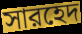
সারহেদ